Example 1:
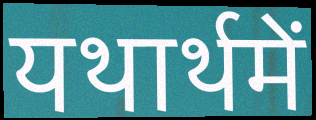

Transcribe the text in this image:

यथार्थमें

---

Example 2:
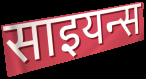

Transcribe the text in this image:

साइयन्स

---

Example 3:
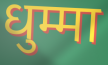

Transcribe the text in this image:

धुम्मा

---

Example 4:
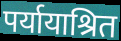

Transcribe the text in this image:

पर्यायाश्रित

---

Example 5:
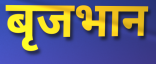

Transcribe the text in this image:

बृजभान